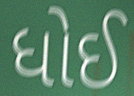
ધોઈ